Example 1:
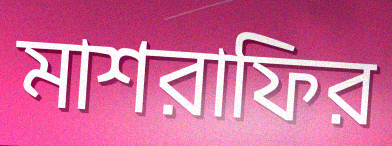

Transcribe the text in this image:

মাশরাফির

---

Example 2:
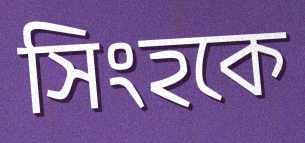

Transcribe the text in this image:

সিংহকে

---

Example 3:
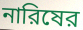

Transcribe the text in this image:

নারিষের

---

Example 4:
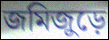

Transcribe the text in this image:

জমিজুড়ে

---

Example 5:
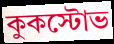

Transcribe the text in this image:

কুকস্টোভ